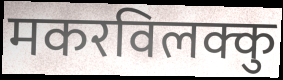
मकरविलक्कु